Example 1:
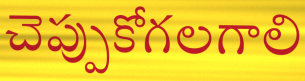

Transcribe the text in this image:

చెప్పుకోగలగాలి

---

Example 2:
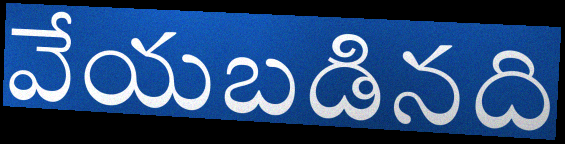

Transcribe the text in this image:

వేయబడినది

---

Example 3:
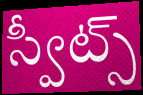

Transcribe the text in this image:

స్వీట్స్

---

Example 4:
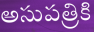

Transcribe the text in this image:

అసుపత్రికి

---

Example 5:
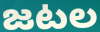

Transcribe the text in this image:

జటల